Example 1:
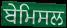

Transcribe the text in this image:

ਬੇਮਿਸਲ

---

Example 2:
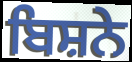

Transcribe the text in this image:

ਬਿਸ਼ਨੇ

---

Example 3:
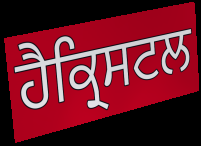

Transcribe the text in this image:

ਹੈਕ੍ਰਿਸਟਲ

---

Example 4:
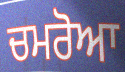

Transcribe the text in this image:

ਚਮਰੋਆ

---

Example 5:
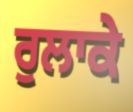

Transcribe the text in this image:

ਰੁਲਾਕੇ